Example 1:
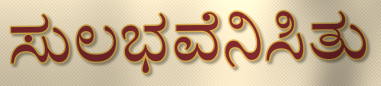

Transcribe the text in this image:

ಸುಲಭವೆನಿಸಿತು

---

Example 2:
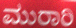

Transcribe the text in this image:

ಮುರಾರಿ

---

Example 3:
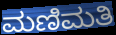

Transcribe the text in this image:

ಮಣಿಮತಿ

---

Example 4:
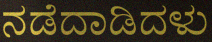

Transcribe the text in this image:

ನಡೆದಾಡಿದಳು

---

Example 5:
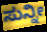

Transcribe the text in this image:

ಸುನ್ನೀ